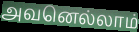
அவனெல்லாம்